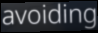
avoiding